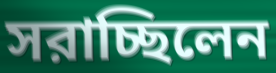
সরাচ্ছিলেন